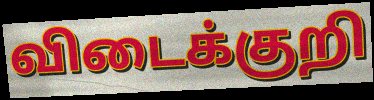
விடைக்குறி